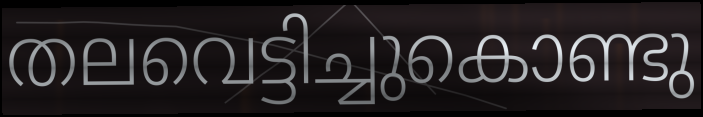
തലവെട്ടിച്ചുകൊണ്ടു